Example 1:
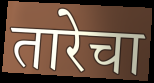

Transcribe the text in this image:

तारेचा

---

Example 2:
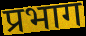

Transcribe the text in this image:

प्रभाग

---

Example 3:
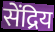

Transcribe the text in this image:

सेंद्रिय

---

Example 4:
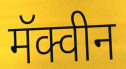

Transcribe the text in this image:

मॅक्वीन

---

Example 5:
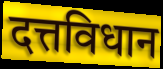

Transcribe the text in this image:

दत्तविधान